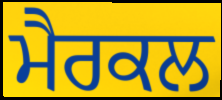
ਮੈਰਕਲ